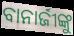
ବାନାର୍ଜୀଙ୍କୁ